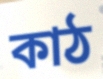
কাঠ